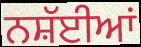
ਨਸ਼ੱਈਆਂ